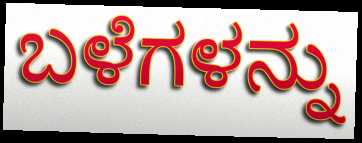
ಬಳೆಗಳನ್ನು